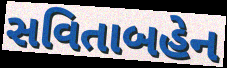
સવિતાબહેન